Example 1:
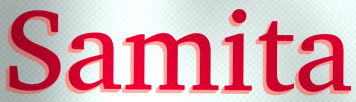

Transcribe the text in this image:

Samita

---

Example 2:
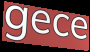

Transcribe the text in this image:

gece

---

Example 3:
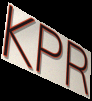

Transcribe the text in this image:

KPR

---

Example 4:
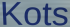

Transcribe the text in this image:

Kots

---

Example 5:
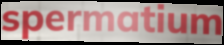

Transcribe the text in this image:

spermatium